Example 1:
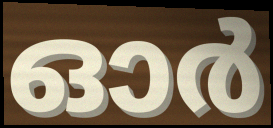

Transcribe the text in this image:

ഓർ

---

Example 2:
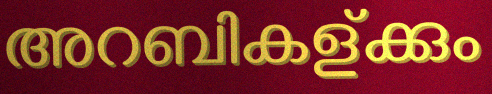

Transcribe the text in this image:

അറബികള്ക്കും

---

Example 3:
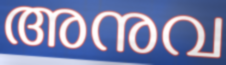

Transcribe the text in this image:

അനുവ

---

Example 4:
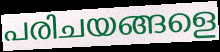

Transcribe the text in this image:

പരിചയങ്ങളെ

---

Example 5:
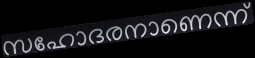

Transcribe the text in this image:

സഹോദരനാണെന്ന്